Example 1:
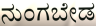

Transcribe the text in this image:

ನುಂಗಬೇಡ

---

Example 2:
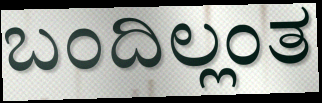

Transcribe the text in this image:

ಬಂದಿಲ್ಲಂತ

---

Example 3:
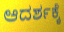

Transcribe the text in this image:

ಆದರ್ಶಕ್ಕೆ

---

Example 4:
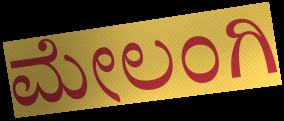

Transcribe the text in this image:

ಮೇಲಂಗಿ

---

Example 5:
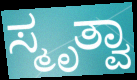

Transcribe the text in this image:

ಸ್ಮೃತ್ವಾ